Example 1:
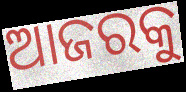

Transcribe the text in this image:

ଆଜରକୁ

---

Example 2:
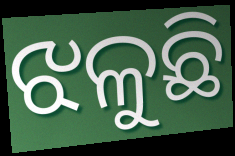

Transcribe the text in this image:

ଝଳୁଛି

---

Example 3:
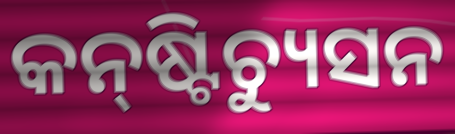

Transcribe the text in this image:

କନ୍‍ଷ୍ଟିଚ୍ୟୁସନ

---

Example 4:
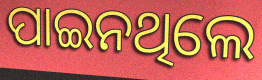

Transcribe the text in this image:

ପାଇନଥିଲେ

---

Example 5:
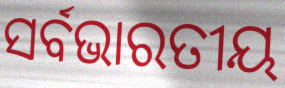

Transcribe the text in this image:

ସର୍ବଭାରତୀୟ